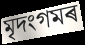
মৃদংগমৰ